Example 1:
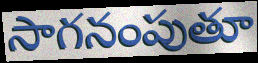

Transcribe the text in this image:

సాగనంపుతూ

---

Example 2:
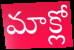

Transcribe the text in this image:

మాక్లో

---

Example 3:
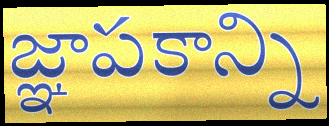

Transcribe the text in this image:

జ్ఞాపకాన్ని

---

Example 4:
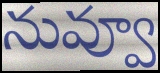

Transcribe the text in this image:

నువ్వూ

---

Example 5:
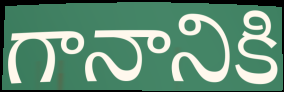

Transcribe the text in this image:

గానానికి